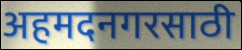
अहमदनगरसाठी